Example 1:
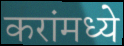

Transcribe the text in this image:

करांमध्ये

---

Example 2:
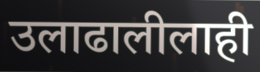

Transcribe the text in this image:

उलाढालीलाही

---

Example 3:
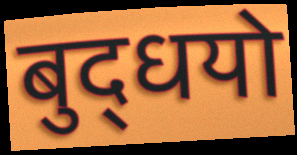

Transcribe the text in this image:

बुद्धयो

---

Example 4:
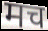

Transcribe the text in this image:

मच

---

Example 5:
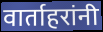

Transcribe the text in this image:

वार्ताहरांनी